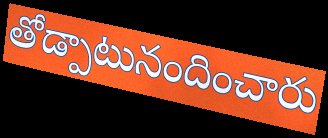
తోడ్పాటునందించారు